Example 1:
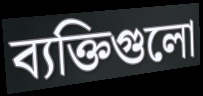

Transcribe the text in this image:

ব্যক্তিগুলো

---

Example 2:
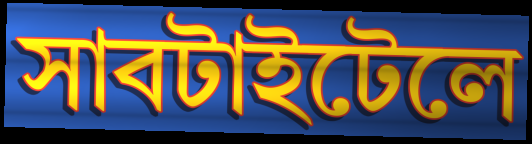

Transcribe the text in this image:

সাবটাইটেলে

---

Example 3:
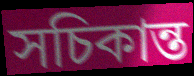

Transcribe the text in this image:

সচিকান্ত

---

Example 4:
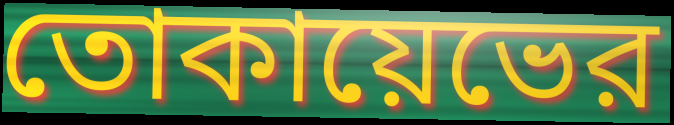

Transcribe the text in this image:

তোকায়েভের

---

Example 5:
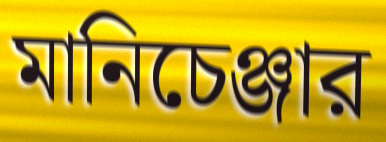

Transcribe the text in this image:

মানিচেঞ্জার